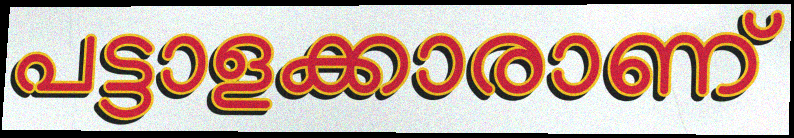
പട്ടാളക്കാരാണ്